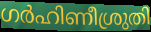
ഗർഹിണീശ്രുതി